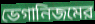
ভেগানিজমের